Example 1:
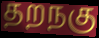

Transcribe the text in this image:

தறநகு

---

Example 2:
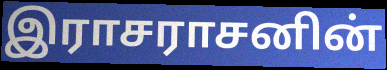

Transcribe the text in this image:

இராசராசனின்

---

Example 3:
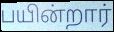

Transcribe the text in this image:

பயின்றார்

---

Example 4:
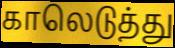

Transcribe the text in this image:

காலெடுத்து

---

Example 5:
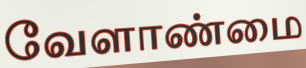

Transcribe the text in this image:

வேளாண்மை